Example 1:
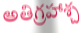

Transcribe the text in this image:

అతిగ్రహాశ్చ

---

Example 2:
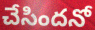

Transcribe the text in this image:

చేసిందనో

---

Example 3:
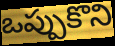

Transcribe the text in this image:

ఒప్పుకొని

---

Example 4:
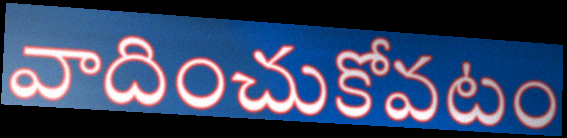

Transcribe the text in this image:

వాదించుకోవటం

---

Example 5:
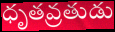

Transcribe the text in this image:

ధృతవ్రతుడు